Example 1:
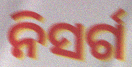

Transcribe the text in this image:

ନିସର୍ଗ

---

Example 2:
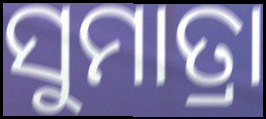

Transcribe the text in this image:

ସୁମାତ୍ରା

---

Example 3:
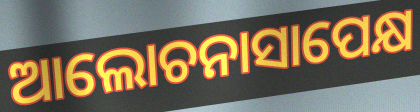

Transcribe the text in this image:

ଆଲୋଚନାସାପେକ୍ଷ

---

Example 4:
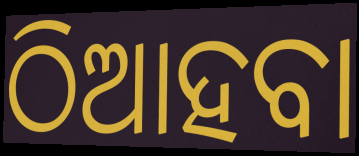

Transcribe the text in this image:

ଠିଆହବା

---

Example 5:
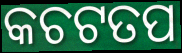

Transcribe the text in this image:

କଚଟତପ